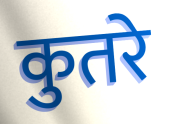
कुतरे